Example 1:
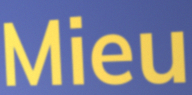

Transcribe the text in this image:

Mieu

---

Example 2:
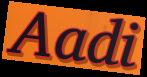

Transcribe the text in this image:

Aadi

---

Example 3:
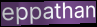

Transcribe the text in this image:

eppathan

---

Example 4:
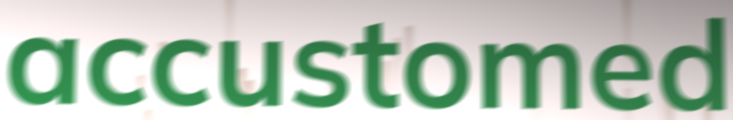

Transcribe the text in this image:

accustomed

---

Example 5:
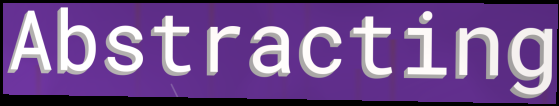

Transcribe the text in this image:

Abstracting